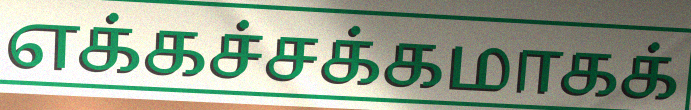
எக்கச்சக்கமாகக்